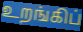
உறங்கிப்